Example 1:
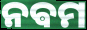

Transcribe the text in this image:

ନଵମ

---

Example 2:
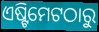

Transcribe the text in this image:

ଏଷ୍ଟିମେଟଠାରୁ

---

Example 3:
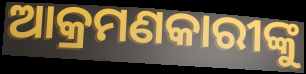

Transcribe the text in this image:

ଆକ୍ରମଣକାରୀଙ୍କୁ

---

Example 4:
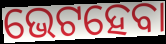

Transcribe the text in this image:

ଭେଟହେବା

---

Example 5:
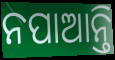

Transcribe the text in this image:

ନପାଆନ୍ତି